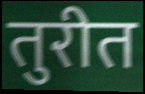
तुरीत